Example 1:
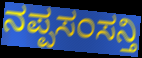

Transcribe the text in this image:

ನಪ್ಪಸಂಸನ್ತಿ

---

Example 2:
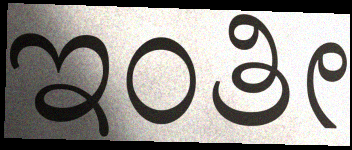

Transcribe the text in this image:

ಇಂತೀ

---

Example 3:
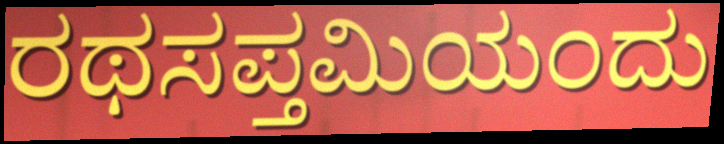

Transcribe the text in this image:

ರಥಸಪ್ತಮಿಯಂದು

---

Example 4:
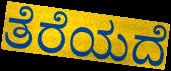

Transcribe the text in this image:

ತೆರೆಯದೆ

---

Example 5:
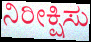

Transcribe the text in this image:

ನಿರೀಕ್ಷಿಸು